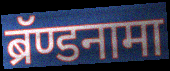
ब्रॅण्डनामा